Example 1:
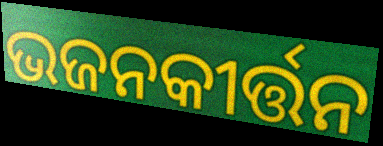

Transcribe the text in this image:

ଭଜନକୀର୍ତ୍ତନ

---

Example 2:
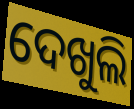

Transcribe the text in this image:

ଦେଖୁଲି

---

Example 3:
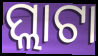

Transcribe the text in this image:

ପ୍ଲାଟା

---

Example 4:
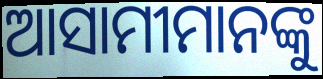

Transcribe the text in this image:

ଆସାମୀମାନଙ୍କୁ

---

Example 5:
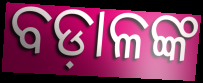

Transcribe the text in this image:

ବଡ଼ାଳଙ୍କ